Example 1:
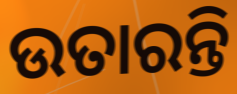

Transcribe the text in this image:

ଉତାରନ୍ତି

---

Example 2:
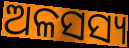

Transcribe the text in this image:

ଅଳସସ୍ୟ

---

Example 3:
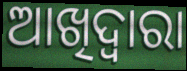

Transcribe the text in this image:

ଆଖିଦ୍ୱାରା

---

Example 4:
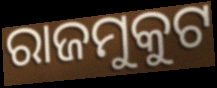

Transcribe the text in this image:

ରାଜମୁକୁଟ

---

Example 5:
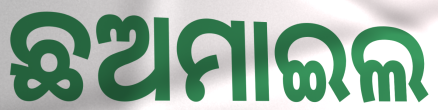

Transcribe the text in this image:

ଛଅମାଇଲ